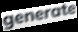
generate